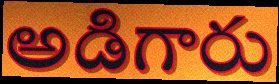
అడిగారు